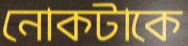
নোকটাকে